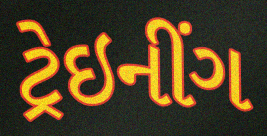
ટ્રેઇનીંગ